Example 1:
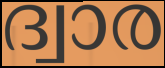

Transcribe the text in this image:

ദ്വാര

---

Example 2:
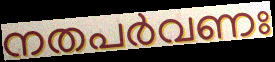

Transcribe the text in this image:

നതപർവണഃ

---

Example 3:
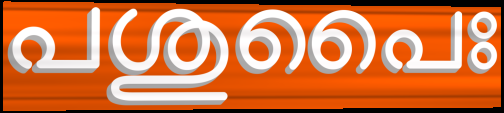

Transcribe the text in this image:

പശുപൈഃ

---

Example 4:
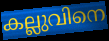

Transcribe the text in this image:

കല്ലുവിനെ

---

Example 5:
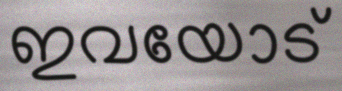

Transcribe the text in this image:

ഇവയോട്